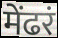
मेंढरं